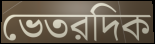
ভেতরদিক